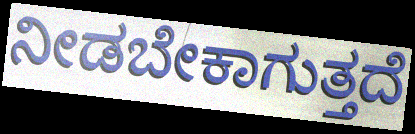
ನೀಡಬೇಕಾಗುತ್ತದೆ